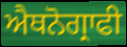
ਐਥਨੋਗ੍ਰਾਫੀ